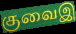
குவைஇ